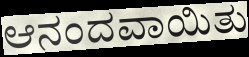
ಆನಂದವಾಯಿತು